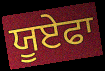
ਯੂਏਫਾ